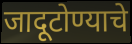
जादूटोण्याचे